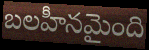
బలహీనమైంది